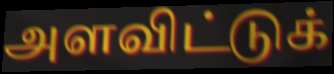
அளவிட்டுக்